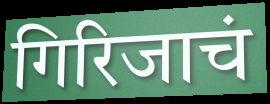
गिरिजाचं